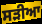
ਸੜੀਆ